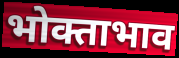
भोक्ताभाव